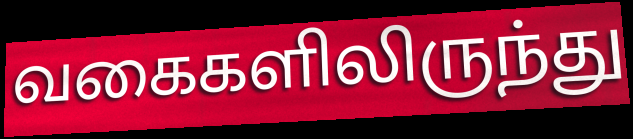
வகைகளிலிருந்து